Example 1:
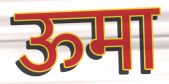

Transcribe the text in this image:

ऊमा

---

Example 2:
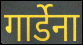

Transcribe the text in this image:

गार्डेना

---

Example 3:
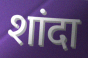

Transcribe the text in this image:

शांदा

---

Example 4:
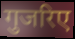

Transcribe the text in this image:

गुजरिए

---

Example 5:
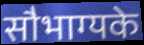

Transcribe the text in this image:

सौभाग्यके